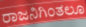
ರಾಜನಿಗಿಂತಲೂ